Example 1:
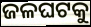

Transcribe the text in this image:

ଜଳଘଟକୁ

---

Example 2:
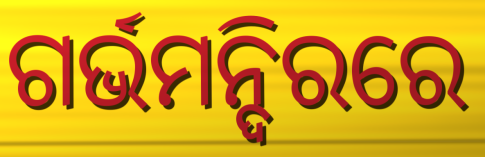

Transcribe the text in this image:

ଗର୍ଭମନ୍ଦିରରେ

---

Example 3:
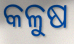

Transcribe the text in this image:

କଳୁଷ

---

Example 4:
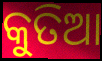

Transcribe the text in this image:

କୁତିଆ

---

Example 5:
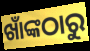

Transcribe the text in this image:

ଖାଁଙ୍କଠାରୁ